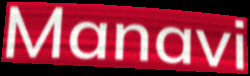
Manavi